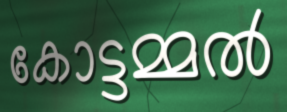
കോട്ടമ്മൽ